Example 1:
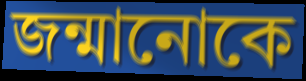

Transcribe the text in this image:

জন্মানোকে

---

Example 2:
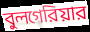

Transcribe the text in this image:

বুলগেরিয়ার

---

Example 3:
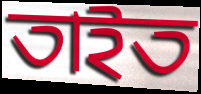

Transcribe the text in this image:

তাইত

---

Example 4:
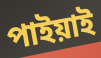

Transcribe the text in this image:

পাইয়াই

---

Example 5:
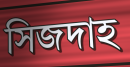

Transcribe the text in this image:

সিজদাহ